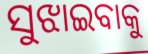
ସୁଝାଇବାକୁ